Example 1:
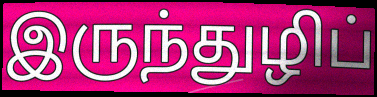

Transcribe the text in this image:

இருந்துழிப்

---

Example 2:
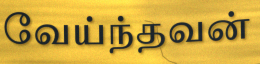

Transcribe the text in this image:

வேய்ந்தவன்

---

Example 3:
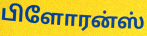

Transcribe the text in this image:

பிளோரன்ஸ்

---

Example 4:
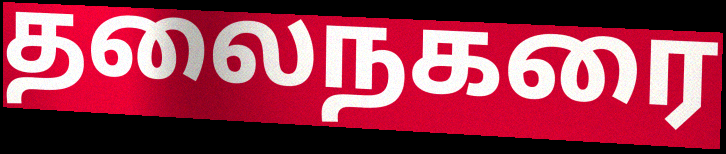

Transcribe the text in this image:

தலைநகரை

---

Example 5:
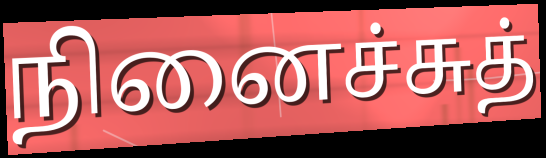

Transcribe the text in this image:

நினைச்சுத்